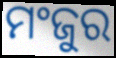
ମଂଜୁର